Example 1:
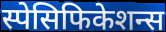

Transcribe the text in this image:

स्पेसिफिकेशन्स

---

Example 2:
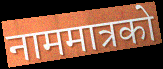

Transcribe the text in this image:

नाममात्रको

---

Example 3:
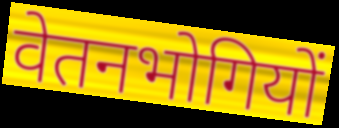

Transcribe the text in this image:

वेतनभोगियों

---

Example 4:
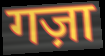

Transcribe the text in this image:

गज़ा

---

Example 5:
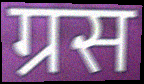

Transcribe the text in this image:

ग्रस